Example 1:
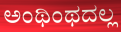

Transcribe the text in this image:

ಅಂಥಿಂಥದಲ್ಲ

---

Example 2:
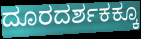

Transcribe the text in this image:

ದೂರದರ್ಶಕಕ್ಕೂ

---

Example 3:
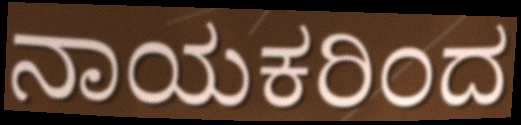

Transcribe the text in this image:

ನಾಯಕರಿಂದ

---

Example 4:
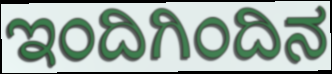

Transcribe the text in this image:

ಇಂದಿಗಿಂದಿನ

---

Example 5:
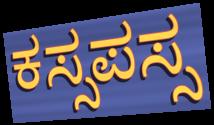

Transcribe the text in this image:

ಕಸ್ಸಪಸ್ಸ